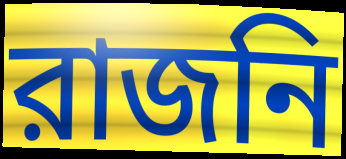
রাজনি